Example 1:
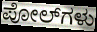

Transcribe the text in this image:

ಪೋಲ್‌ಗಳು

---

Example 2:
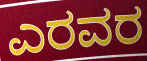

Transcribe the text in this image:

ಎರವರ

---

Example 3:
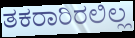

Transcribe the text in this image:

ತಕರಾರಿರಲಿಲ್ಲ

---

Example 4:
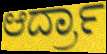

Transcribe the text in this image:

ಆರ್ದ್ರಾ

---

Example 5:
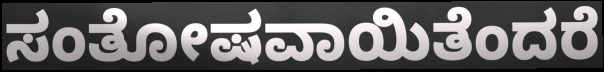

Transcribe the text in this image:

ಸಂತೋಷವಾಯಿತೆಂದರೆ